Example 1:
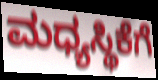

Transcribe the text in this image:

ಮಧ್ಯಸ್ಥಿಕೆಗೆ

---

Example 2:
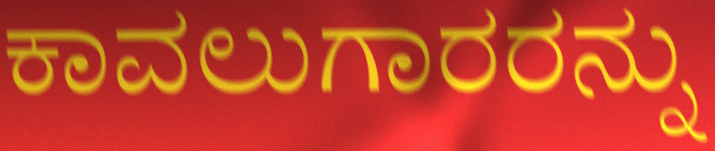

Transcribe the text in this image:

ಕಾವಲುಗಾರರನ್ನು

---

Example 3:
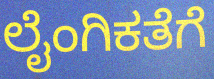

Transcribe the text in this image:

ಲೈಂಗಿಕತೆಗೆ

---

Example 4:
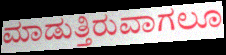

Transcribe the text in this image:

ಮಾಡುತ್ತಿರುವಾಗಲೂ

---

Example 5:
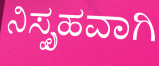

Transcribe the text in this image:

ನಿಸ್ಪೃಹವಾಗಿ